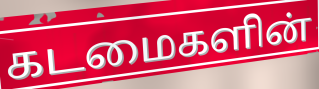
கடமைகளின்